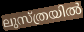
ലുസ്ത്രയിൽ